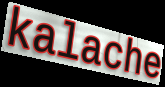
kalache